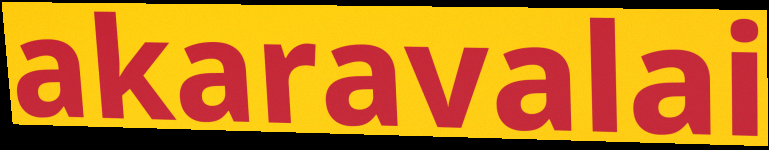
akaravalai